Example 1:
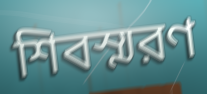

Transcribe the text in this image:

শিবস্মরণ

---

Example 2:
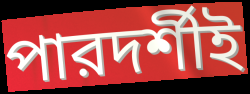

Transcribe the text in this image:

পারদর্শীই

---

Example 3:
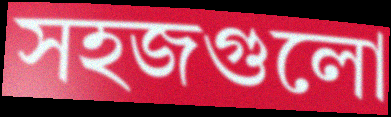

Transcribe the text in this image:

সহজগুলো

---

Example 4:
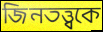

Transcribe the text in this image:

জিনতত্ত্বকে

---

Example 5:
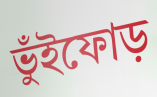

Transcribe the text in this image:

ভুঁইফোড়